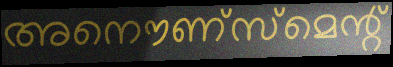
അനൌണ്സ്മെന്റ്